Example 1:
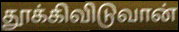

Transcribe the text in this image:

தூக்கிவிடுவான்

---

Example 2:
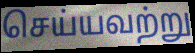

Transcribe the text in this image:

செய்யவற்று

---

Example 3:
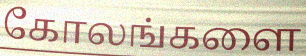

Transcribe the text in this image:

கோலங்களை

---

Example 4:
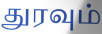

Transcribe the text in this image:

துரவும்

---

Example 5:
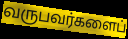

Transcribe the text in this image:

வருபவர்களைப்